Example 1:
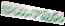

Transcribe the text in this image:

అయినాపురం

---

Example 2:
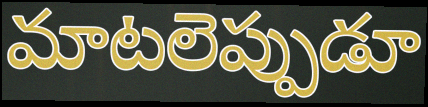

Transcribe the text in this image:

మాటలెప్పుడూ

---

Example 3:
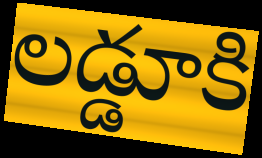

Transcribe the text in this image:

లడ్డూకి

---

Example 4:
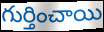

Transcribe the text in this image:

గుర్తించాయి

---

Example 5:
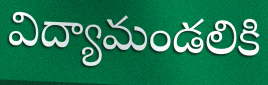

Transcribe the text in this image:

విద్యామండలికి